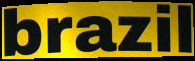
brazil